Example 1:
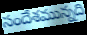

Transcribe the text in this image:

సందేశమున్నది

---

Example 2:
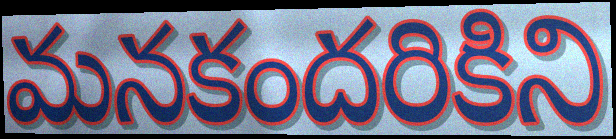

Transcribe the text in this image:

మనకందరికిని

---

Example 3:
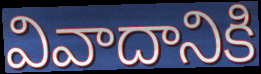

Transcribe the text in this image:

వివాదానికి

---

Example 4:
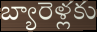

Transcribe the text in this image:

బ్యారెళ్లకు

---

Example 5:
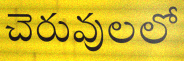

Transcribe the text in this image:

చెరువులలో